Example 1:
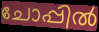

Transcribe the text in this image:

ചോപ്പിൽ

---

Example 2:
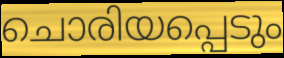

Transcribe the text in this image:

ചൊരിയപ്പെടും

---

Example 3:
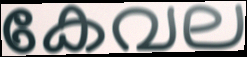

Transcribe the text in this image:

കേവല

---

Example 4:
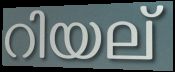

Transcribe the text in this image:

റിയല്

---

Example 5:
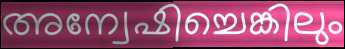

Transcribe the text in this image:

അന്വേഷിച്ചെങ്കിലും